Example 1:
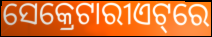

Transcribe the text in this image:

ସେକ୍ରେଟାରୀଏଟ୍‌ରେ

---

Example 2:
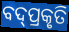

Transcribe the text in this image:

ବଦ୍‌ପ୍ରକୃତି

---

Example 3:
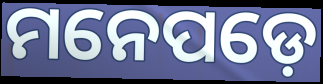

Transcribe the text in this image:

ମନେପଡ଼େ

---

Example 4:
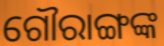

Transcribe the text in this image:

ଗୌରାଙ୍ଗଙ୍କ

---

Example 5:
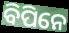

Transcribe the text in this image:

ବିପିନେ